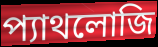
প্যাথলোজি